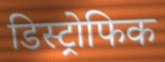
डिस्ट्रोफिक